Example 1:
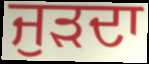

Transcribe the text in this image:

ਜੁੜਦਾ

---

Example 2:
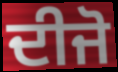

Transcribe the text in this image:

ਦੀਜੋ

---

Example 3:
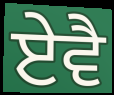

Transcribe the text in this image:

ਏਵੈ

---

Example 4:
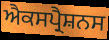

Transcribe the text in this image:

ਐਕਸਪ੍ਰੈਸ਼ਨਸ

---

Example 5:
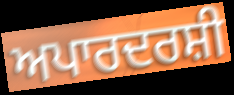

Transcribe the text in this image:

ਅਪਾਰਦਰਸ਼ੀ